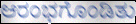
ಆರಂಭಗೊಂಡಿತು